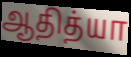
ஆதித்யா